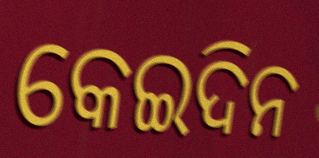
କେଇଦିନ